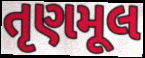
તૃણમૂલ